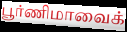
பூர்ணிமாவைக்